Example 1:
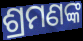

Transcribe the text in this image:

ଶ୍ରମଣଙ୍କ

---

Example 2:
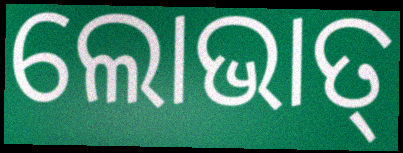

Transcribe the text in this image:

ଲୋଭାତ୍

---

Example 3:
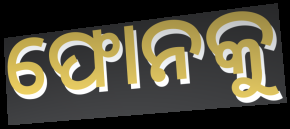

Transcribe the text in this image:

ଫୋନକୁ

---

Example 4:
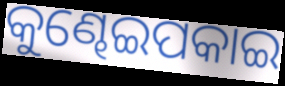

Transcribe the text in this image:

କୁଣ୍ଢେଇପକାଇ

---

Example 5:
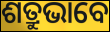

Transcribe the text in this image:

ଶତ୍ରୁଭାବେ